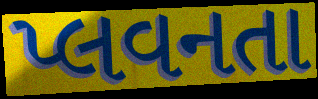
પ્લવનતા